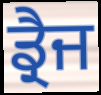
ਡ੍ਰੈਜ